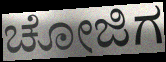
ಚೋಜಿಗ